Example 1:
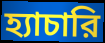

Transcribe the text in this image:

হ্যাচারি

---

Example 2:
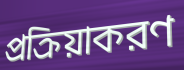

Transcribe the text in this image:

প্রক্রিয়াকরণ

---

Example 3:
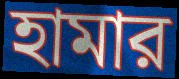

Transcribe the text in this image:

হামার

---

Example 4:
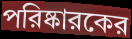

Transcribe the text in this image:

পরিষ্কারকের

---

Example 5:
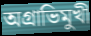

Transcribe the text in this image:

অগ্রাভিমুখী